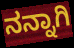
ನನ್ನಾಗಿ